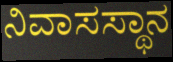
ನಿವಾಸಸ್ಥಾನ